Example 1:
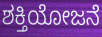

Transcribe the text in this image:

ಶಕ್ತಿಯೋಜನೆ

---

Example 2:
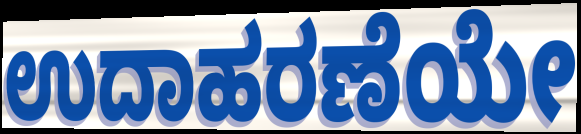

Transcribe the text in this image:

ಉದಾಹರಣೆಯೇ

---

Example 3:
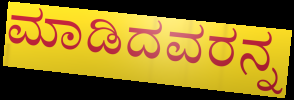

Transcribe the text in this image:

ಮಾಡಿದವರನ್ನ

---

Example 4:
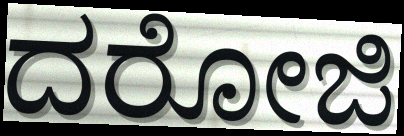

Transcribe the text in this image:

ದರೋಜಿ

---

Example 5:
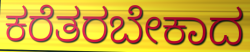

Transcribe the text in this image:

ಕರೆತರಬೇಕಾದ